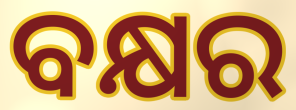
ବକ୍ଷର